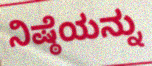
ನಿಷ್ಠೆಯನ್ನು